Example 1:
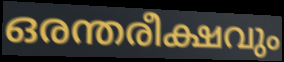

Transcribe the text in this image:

ഒരന്തരീക്ഷവും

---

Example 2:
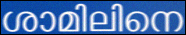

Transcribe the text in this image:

ശാമിലിനെ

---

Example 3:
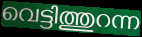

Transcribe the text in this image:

വെട്ടിത്തുറന്ന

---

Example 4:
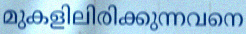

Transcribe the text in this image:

മുകളിലിരിക്കുന്നവനെ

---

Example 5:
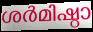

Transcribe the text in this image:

ശർമിഷ്ഠാ